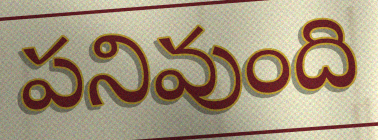
పనివుంది